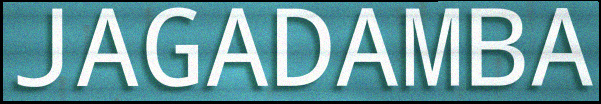
JAGADAMBA